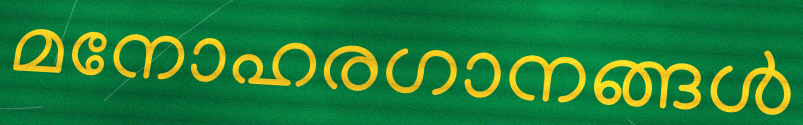
മനോഹരഗാനങ്ങൾ